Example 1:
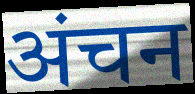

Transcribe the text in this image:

अंचन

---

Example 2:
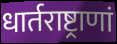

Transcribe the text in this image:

धार्तराष्ट्राणां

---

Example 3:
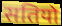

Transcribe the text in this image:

सतियो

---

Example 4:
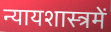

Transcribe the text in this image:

न्यायशास्त्रमें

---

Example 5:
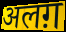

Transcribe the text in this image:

अलग़